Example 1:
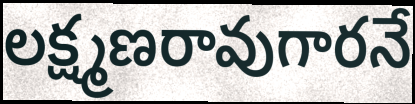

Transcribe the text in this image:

లక్ష్మణరావుగారనే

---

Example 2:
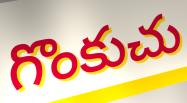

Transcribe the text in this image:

గొంకుచు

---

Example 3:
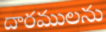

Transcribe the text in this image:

దారములను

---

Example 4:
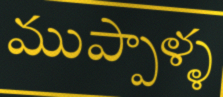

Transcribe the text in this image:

ముప్పాళ్ళ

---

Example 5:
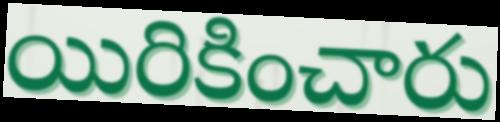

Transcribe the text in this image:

యిరికించారు